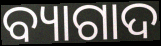
ବ୍ୟାଗାଦ